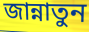
জান্নাতুন